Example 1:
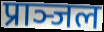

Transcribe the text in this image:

प्राञ्जल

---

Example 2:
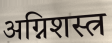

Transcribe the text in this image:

अग्निशस्त्र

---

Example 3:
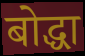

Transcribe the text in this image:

बोद्धा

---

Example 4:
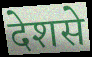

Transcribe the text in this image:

देशसे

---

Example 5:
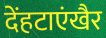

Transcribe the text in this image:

देंहटाएंखैर